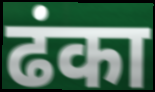
ढंका